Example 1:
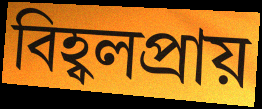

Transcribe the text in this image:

বিহ্বলপ্রায়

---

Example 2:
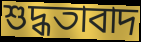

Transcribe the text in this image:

শুদ্ধতাবাদ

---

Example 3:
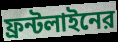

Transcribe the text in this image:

ফ্রন্টলাইনের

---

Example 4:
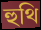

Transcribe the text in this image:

হুথি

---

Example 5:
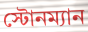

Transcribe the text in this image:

স্টোনম্যান